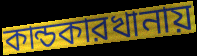
কান্ডকারখানায়